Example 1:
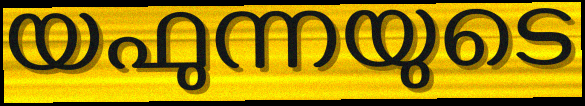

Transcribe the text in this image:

യഫുന്നയുടെ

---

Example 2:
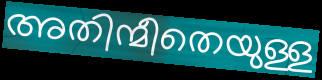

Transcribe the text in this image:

അതിന്മീതെയുള്ള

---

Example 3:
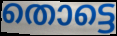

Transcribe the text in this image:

തൊട്ടെ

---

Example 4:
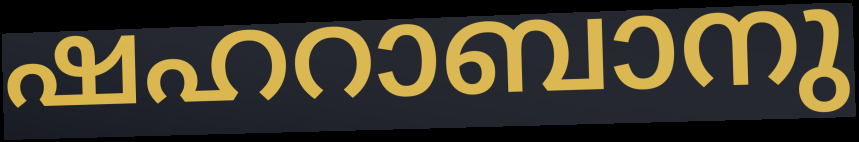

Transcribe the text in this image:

ഷഹറാബാനു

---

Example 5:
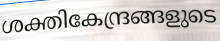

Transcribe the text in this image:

ശക്തികേന്ദ്രങ്ങളുടെ